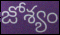
జోశ్యం